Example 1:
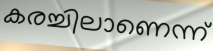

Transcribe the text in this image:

കരച്ചിലാണെന്ന്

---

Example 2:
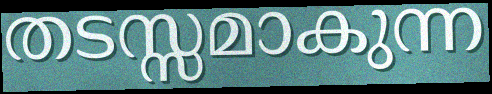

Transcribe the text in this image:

തടസ്സമാകുന്ന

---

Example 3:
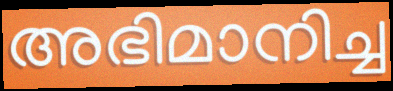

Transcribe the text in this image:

അഭിമാനിച്ച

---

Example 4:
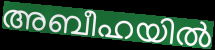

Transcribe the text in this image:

അബീഹയിൽ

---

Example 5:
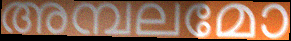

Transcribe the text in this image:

അമ്പലമോ